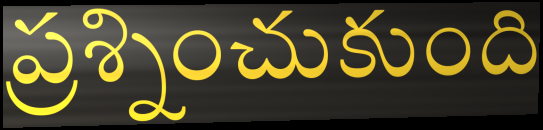
ప్రశ్నించుకుంది